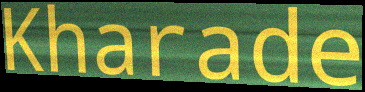
Kharade